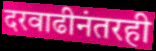
दरवाढीनंतरही